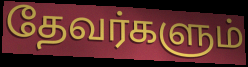
தேவர்களும்